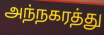
அந்நகரத்து